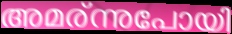
അമര്ന്നുപോയി